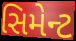
સિમેન્ટ